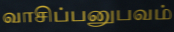
வாசிப்பனுபவம்